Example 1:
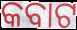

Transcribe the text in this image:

କବାଟ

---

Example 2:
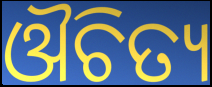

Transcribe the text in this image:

ଔଚିତ୍ଯ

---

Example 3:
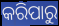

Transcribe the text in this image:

କରିପାରୁ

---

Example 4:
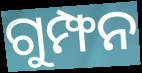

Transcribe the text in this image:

ଗୁମ୍ଫନ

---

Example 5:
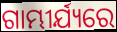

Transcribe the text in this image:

ଗାମ୍ଭୀର୍ଯ୍ୟରେ